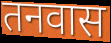
तनवास